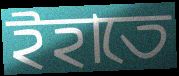
ইহাতে